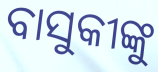
ବାସୁକୀଙ୍କୁ